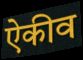
ऐकीव